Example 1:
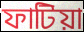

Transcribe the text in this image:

ফাটিয়া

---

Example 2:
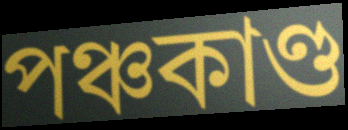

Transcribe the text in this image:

পঞ্চকাণ্ড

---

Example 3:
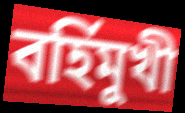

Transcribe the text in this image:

বর্হিমুখী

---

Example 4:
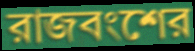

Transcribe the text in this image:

রাজবংশের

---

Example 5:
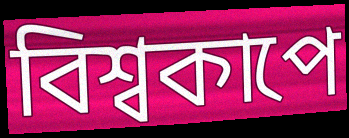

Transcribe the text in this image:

বিশ্বকাপে